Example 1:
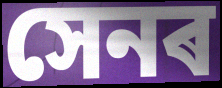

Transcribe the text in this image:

সেনৰ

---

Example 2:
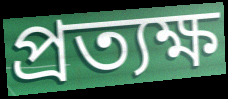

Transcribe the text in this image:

প্ৰত্যক্ষ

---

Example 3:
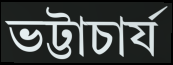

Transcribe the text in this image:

ভট্টাচাৰ্য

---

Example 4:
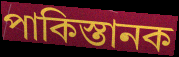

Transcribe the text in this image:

পাকিস্তানক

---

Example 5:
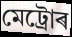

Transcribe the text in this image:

মেট্ৰোৰ